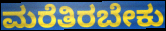
ಮರೆತಿರಬೇಕು